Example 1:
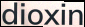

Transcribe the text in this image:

dioxin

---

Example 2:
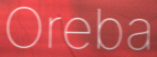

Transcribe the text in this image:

Oreba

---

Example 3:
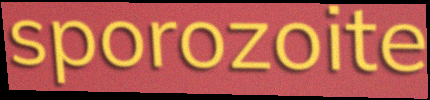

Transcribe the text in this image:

sporozoite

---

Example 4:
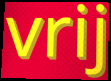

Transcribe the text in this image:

vrij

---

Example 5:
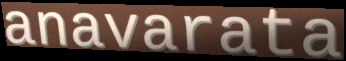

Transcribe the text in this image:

anavarata